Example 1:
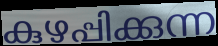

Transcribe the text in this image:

കുഴപ്പിക്കുന്ന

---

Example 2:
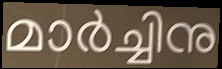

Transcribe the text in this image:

മാർച്ചിനു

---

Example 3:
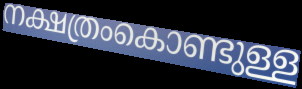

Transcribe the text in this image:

നക്ഷത്രംകൊണ്ടുള്ള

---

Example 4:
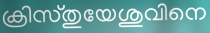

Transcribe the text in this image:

ക്രിസ്തുയേശുവിനെ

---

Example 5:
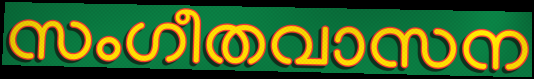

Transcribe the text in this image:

സംഗീതവാസന